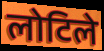
लोटिले